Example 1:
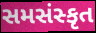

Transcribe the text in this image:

સમસંસ્કૃત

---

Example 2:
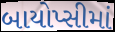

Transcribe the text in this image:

બાયોપ્સીમાં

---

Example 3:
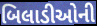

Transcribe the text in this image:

બિલાડીઓની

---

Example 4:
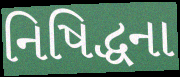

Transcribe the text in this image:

નિષિદ્ધના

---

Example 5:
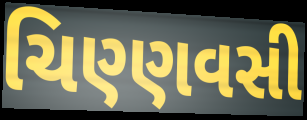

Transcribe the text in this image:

ચિણ્ણવસી